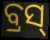
ବ୍ରସ୍